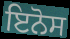
ਇਨੋਸ